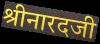
श्रीनारदजी